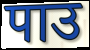
पाउ